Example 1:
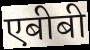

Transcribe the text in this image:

एबीबी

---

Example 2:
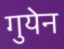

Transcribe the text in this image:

गुयेन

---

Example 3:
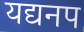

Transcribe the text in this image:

यद्यनप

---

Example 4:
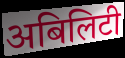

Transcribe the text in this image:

अबिलिटी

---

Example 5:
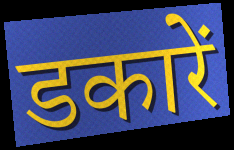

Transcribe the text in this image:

डकारें